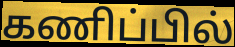
கணிப்பில்